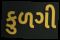
કુળગી